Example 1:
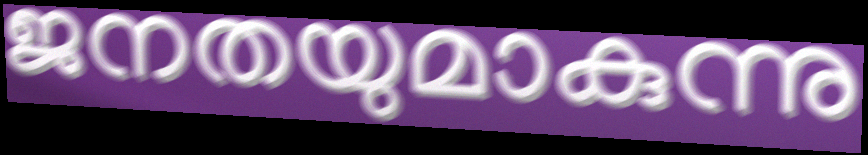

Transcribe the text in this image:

ജനതയുമാകുന്നു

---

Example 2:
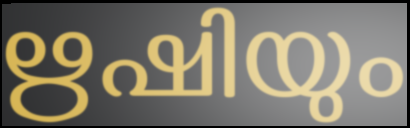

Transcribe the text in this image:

ഋഷിയും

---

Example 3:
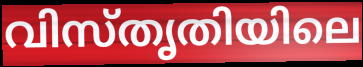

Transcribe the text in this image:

വിസ്തൃതിയിലെ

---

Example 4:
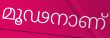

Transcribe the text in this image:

മൂഢനാണ്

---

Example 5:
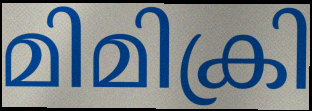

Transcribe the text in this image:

മിമിക്രി